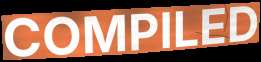
COMPILED